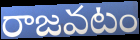
రాజవటం